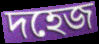
দহেজ